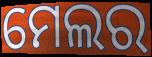
ମେଲର